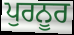
ਪੁਰਨੂਰ